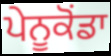
ਪੇਨੂਕੋਂਡਾ